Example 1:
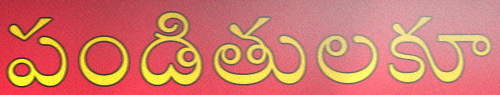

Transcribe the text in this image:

పండితులకూ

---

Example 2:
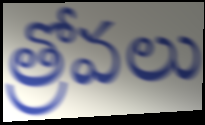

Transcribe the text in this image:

త్రోవలు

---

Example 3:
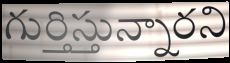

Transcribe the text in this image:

గుర్తిస్తున్నారని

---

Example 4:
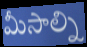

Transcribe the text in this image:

మీసాల్ని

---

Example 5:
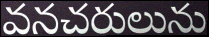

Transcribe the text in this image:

వనచరులును